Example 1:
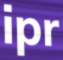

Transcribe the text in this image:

ipr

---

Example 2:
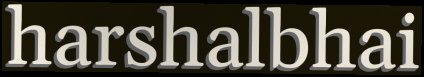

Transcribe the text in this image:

harshalbhai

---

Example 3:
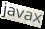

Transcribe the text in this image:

javax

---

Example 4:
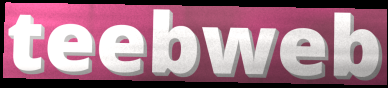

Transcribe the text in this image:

teebweb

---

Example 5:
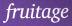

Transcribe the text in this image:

fruitage